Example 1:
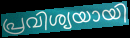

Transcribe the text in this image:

പ്രവിശ്യയായി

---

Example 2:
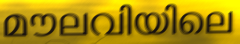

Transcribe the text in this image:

മൗലവിയിലെ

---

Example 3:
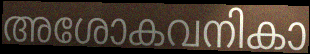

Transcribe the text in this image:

അശോകവനികാ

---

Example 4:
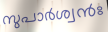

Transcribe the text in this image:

സുപാർശ്വൻഃ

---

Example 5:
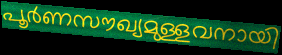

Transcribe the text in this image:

പൂർണസൗഖ്യമുള്ളവനായി